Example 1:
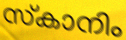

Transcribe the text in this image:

സ്‌കാനിം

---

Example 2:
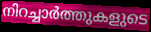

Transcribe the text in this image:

നിറച്ചാർത്തുകളുടെ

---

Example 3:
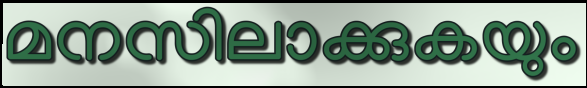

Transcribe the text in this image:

മനസിലാക്കുകയും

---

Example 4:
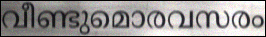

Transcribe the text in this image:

വീണ്ടുമൊരവസരം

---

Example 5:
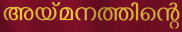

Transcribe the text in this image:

അയ്മനത്തിന്റെ